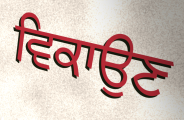
ਵਿਕਾਉਣ